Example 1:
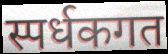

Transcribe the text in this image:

स्पर्धकगत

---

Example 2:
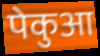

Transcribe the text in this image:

पेकुआ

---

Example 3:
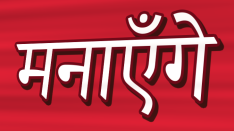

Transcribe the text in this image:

मनाएँगे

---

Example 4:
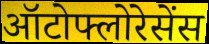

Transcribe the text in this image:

ऑटोफ्लोरेसेंस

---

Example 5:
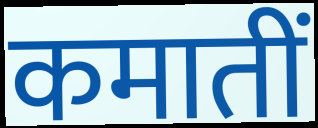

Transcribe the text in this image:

कमातीं